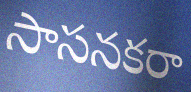
సాసనకరా